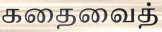
கதைவைத்